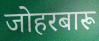
जोहरबारू